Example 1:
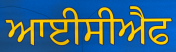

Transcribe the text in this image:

ਆਈਸੀਐਫ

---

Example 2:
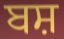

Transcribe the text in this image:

ਬਸ਼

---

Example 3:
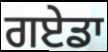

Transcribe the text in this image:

ਗਏਡਾ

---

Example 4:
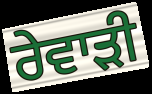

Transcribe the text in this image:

ਰੇਵਾਡ਼ੀ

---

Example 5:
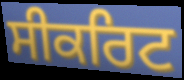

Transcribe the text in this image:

ਸੀਕਰਿਟ